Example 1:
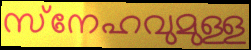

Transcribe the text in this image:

സ്‌നേഹവുമുള്ള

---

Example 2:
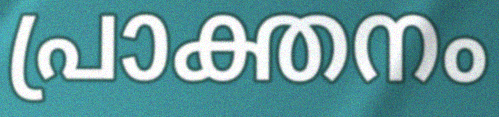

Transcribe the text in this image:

പ്രാക്തനം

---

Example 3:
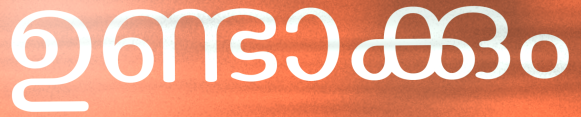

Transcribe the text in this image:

ഉണ്ടാക്കും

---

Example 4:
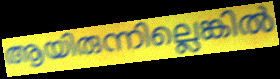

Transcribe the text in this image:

ആയിരുന്നില്ലെങ്കിൽ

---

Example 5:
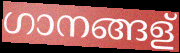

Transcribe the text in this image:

ഗാനങ്ങള്